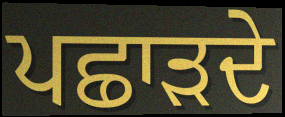
ਪਛਾੜਦੇ